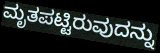
ಮೃತಪಟ್ಟಿರುವುದನ್ನು